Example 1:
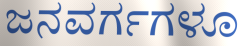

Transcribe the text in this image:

ಜನವರ್ಗಗಳೂ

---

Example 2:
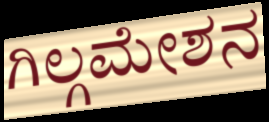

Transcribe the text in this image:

ಗಿಲ್ಗಮೇಶನ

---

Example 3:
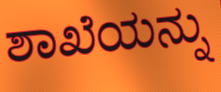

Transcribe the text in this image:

ಶಾಖೆಯನ್ನು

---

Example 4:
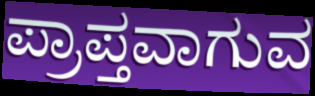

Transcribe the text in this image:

ಪ್ರಾಪ್ತವಾಗುವ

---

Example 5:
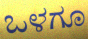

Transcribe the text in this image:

ಒಳಗೂ